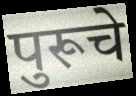
पुरूचे